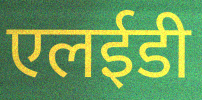
एलईडी